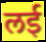
लई